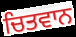
ਚਿਤਵਾਨ